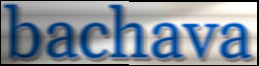
bachava